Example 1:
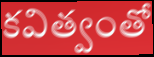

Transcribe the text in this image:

కవిత్వంతో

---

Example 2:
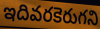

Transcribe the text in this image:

ఇదివరకెరుగని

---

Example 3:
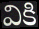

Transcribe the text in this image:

వికి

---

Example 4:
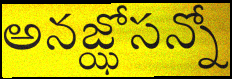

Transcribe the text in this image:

అనజ్ఝోసన్నో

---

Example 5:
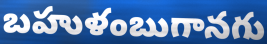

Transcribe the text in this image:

బహుళంబుగానగు